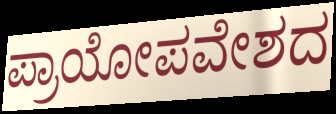
ಪ್ರಾಯೋಪವೇಶದ